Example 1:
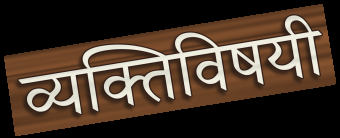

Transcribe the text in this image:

व्यक्तिविषयी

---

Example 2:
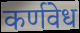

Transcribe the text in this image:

कर्णवेध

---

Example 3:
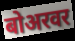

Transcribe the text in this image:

बोअरवर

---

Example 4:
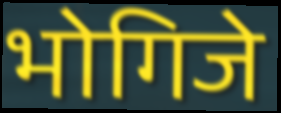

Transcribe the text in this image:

भोगिजे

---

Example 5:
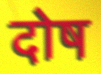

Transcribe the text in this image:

दोष